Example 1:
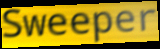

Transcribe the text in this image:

Sweeper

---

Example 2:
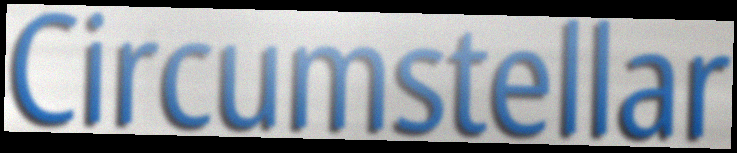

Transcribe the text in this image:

Circumstellar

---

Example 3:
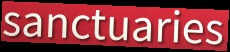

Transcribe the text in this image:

sanctuaries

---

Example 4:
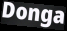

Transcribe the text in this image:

Donga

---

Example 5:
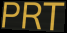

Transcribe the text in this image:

PRT